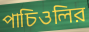
পাচিওলির